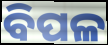
ବିପଳ